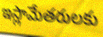
ఇస్లామేతరులకు